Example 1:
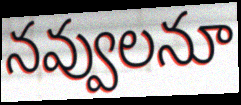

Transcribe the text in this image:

నవ్వులనూ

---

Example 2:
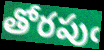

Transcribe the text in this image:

తోరపుఁ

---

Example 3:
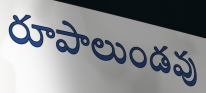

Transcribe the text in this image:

రూపాలుండవు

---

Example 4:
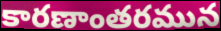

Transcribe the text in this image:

కారణాంతరమున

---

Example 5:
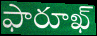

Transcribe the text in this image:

ఫారూఖ్